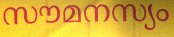
സൗമനസ്യം